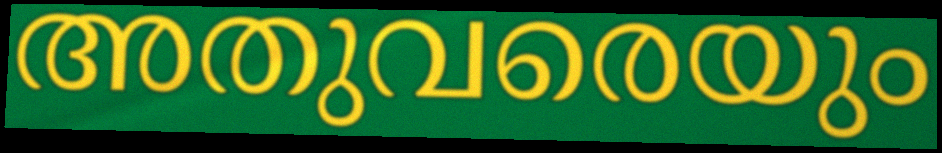
അതുവരെയും